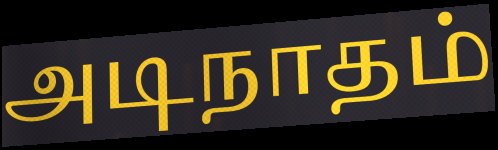
அடிநாதம்